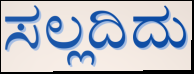
ಸಲ್ಲದಿದು